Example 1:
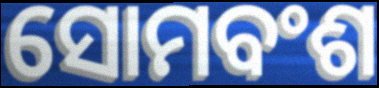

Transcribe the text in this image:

ସୋମବଂଶ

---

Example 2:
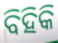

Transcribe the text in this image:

ବିହିକି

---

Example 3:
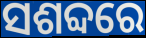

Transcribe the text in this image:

ସଶବ୍ଦରେ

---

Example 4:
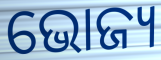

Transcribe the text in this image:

ଭୋଜ୍ୟ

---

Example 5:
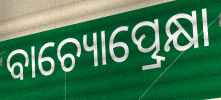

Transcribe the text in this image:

ବାଚ୍ୟୋତ୍ପ୍ରେକ୍ଷା